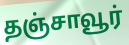
தஞ்சாவூர்